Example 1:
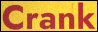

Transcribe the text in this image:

Crank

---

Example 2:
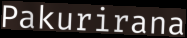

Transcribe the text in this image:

Pakurirana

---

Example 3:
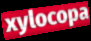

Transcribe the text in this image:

xylocopa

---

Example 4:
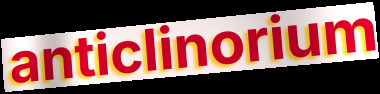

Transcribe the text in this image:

anticlinorium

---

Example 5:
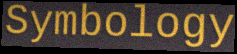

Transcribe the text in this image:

Symbology